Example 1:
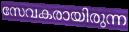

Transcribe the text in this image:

സേവകരായിരുന്ന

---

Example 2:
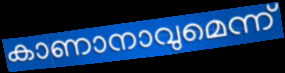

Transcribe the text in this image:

കാണാനാവുമെന്ന്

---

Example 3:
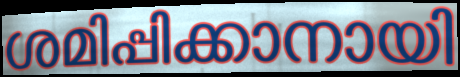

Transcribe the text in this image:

ശമിപ്പിക്കാനായി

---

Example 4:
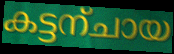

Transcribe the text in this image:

കട്ടന്ചായ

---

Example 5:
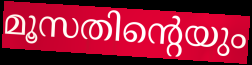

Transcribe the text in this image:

മൂസതിന്റെയും